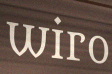
wiro